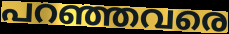
പറഞ്ഞവരെ